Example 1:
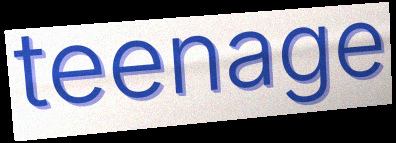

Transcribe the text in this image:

teenage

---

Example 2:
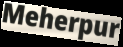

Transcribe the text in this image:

Meherpur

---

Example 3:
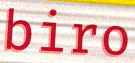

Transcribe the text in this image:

biro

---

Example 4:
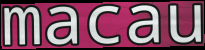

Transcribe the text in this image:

macau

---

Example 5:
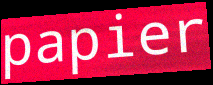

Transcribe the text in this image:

papier